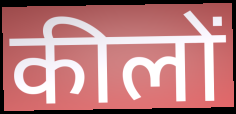
कीलों